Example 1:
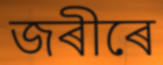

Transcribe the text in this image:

জৰীৰে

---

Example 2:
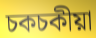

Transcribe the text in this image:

চকচকীয়া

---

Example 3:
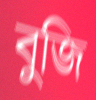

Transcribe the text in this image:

বুজি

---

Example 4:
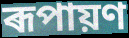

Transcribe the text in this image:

ৰূপায়ণ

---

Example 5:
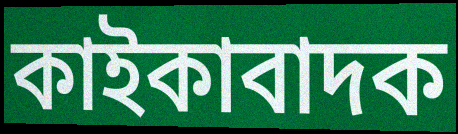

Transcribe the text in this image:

কাইকাবাদক